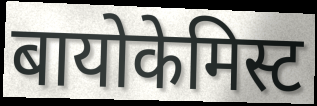
बायोकेमिस्ट